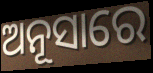
ଅନୂସାରେ